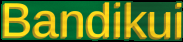
Bandikui